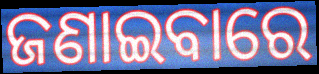
ଜଣାଇବାରେ